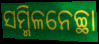
ସମ୍ମିଳନେଚ୍ଛା